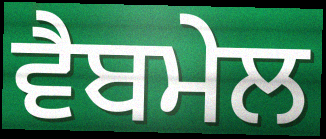
ਵੈਬਮੇਲ